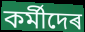
কৰ্মীদেৰ